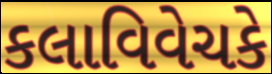
કલાવિવેચકે